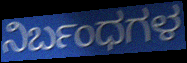
ನಿರ್ಬಂಧಗಳ